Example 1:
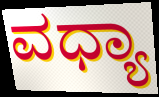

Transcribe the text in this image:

ವಧ್ಯಾ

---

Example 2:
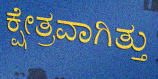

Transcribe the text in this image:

ಕ್ಷೇತ್ರವಾಗಿತ್ತು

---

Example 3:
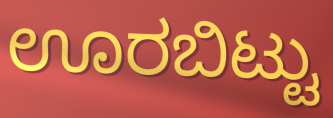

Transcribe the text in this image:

ಊರಬಿಟ್ಟು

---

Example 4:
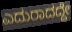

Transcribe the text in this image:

ಎದುರಾದದ್ದೇ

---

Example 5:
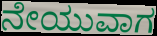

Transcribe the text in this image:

ನೇಯುವಾಗ